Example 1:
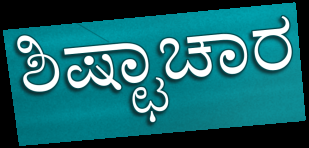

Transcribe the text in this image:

ಶಿಷ್ಟಾಚಾರ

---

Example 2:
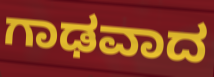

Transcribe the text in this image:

ಗಾಢವಾದ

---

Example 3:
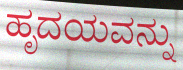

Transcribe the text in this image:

ಹೃದಯವನ್ನು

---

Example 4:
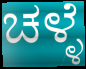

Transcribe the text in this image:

ಚಳ್ಳೆ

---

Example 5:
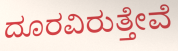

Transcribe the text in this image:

ದೂರವಿರುತ್ತೇವೆ